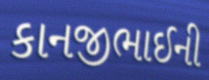
કાનજીભાઈની